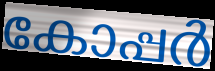
കോപ്പർ